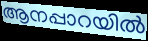
ആനപ്പാറയിൽ